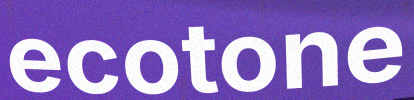
ecotone